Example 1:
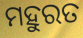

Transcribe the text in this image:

ମହୁରତ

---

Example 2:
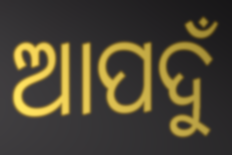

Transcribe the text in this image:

ଆପଦୁଁ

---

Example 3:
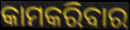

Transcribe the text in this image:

କାମକରିବାର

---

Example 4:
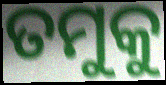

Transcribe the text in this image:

ତମୁକୁ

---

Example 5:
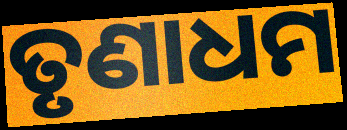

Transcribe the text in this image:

ତୃଣାଧମ